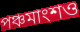
পঞ্চমাংশও